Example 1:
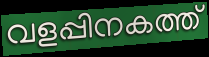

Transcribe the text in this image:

വളപ്പിനകത്ത്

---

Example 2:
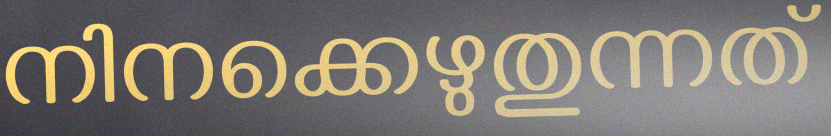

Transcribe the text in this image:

നിനക്കെഴുതുന്നത്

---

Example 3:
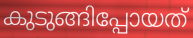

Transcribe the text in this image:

കുടുങ്ങിപ്പോയത്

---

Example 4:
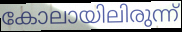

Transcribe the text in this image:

കോലായിലിരുന്ന്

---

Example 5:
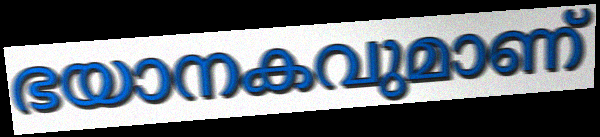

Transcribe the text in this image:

ഭയാനകവുമാണ്